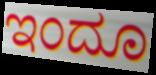
ಇಂದೂ